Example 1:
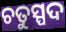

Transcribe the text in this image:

ଚତୁସ୍ପଦ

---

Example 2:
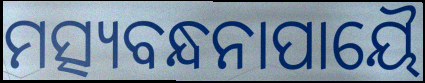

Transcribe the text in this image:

ମତ୍ସ୍ୟବନ୍ଧନାପାୟୈ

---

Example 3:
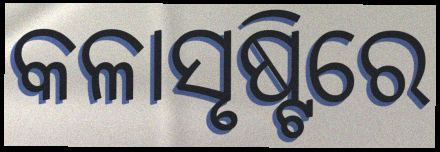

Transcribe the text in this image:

କଳାସୃଷ୍ଟିରେ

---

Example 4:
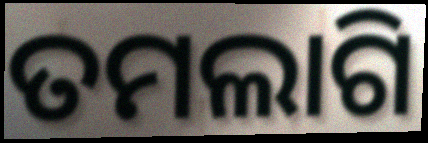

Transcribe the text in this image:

ତମଲାଗି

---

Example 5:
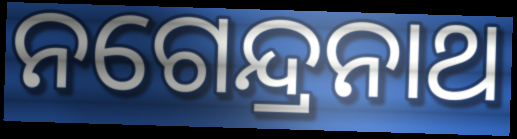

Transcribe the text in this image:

ନଗେନ୍ଦ୍ରନାଥ